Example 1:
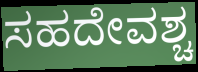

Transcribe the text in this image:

ಸಹದೇವಶ್ಚ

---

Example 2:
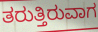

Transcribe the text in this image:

ತರುತ್ತಿರುವಾಗ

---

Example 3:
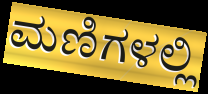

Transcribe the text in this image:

ಮಣಿಗಳಲ್ಲಿ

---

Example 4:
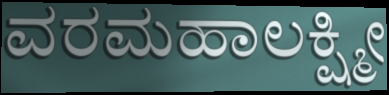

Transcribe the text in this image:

ವರಮಹಾಲಕ್ಷ್ಮೀ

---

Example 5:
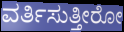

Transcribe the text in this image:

ವರ್ತಿಸುತ್ತೀರೋ